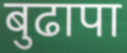
बुढापा